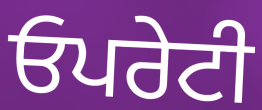
ਓਪਰੇਟੀ